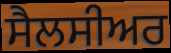
ਸੈਲਸੀਅਰ